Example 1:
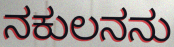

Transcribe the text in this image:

ನಕುಲನನು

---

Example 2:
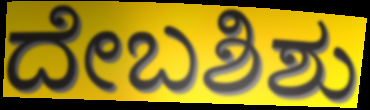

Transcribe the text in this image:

ದೇಬಶಿಶು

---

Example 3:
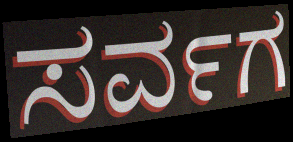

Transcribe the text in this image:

ಸರ್ವಗ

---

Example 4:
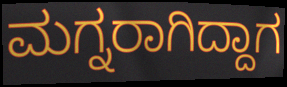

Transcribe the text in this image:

ಮಗ್ನರಾಗಿದ್ದಾಗ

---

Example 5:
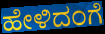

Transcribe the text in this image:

ಹೇಳಿದಂಗೆ